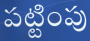
పట్టింపు